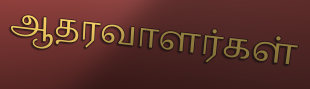
ஆதரவாளர்கள்